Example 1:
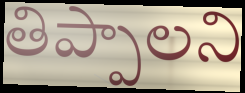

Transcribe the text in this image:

తిప్పాలని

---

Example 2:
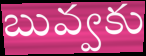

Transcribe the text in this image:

బువ్వకు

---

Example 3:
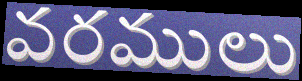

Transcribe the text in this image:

వరములు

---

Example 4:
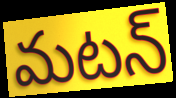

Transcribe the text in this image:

మటన్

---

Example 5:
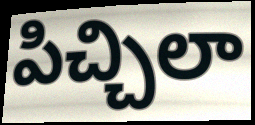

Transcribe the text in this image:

పిచ్చిలా